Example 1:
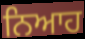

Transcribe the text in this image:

ਨਿਆਹ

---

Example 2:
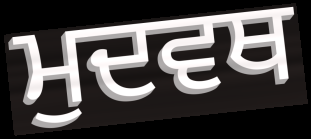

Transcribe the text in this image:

ਮੁਦਵਥ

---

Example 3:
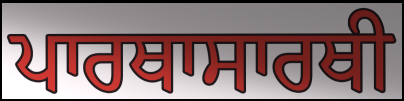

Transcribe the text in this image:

ਪਾਰਥਾਸਾਰਥੀ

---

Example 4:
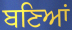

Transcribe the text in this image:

ਬਣਿਆਂ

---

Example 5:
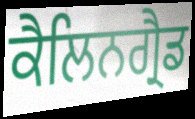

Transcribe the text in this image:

ਕੈਲਿਨਗ੍ਰੈਡ